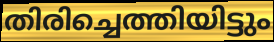
തിരിച്ചെത്തിയിട്ടും